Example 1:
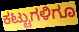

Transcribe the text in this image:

ಕಟ್ಟುಗಳಿಗೂ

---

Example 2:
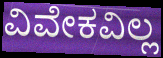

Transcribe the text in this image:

ವಿವೇಕವಿಲ್ಲ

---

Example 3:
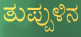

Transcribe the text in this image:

ತುಪ್ಪುಳಿನ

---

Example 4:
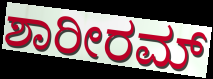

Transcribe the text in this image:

ಶಾರೀರಮ್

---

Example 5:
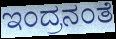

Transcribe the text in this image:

ಇಂದ್ರನಂತೆ